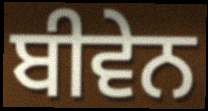
ਬੀਵੇਨ